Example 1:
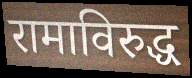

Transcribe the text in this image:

रामाविरुद्ध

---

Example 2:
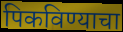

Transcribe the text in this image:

पिकविण्याचा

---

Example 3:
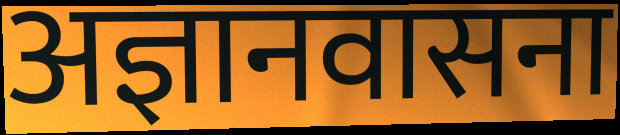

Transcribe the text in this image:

अज्ञानवासना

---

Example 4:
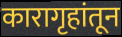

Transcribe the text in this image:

कारागृहांतून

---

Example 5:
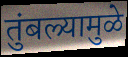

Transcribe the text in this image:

तुंबल्यामुळे